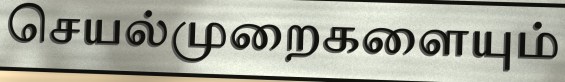
செயல்முறைகளையும்